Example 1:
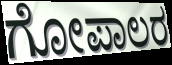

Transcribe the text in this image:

ಗೋಪಾಲರ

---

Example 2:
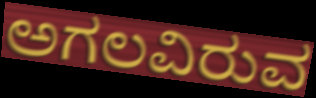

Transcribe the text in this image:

ಅಗಲವಿರುವ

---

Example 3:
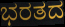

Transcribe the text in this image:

ಭರತದ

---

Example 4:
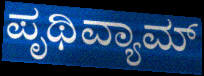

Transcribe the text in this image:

ಪೃಥಿವ್ಯಾಮ್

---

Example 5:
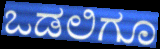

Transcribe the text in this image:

ಒಡಲಿಗೂ